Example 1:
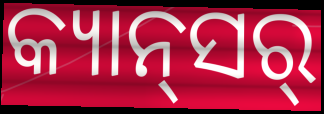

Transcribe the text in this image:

କ୍ୟାନ୍‍ସର୍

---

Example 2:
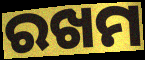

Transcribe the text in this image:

ରଖମ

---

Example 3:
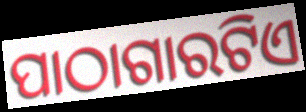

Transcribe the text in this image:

ପାଠାଗାରଟିଏ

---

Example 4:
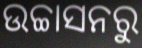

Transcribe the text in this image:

ଉଚ୍ଚାସନରୁ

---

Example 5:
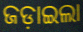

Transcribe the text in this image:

ଜଡ଼ାଇଲା